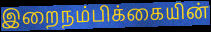
இறைநம்பிக்கையின்